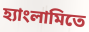
হ্যাংলামিতে